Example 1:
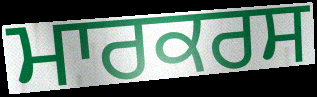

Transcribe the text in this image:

ਮਾਰਕਰਸ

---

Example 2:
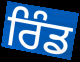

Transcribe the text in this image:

ਰਿੰਡ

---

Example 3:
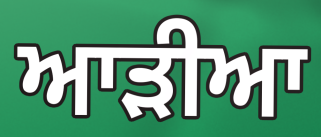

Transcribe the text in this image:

ਆੜੀਆ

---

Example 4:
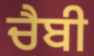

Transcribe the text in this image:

ਚੈਬੀ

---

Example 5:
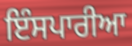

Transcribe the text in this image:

ਇੰਸਪਾਰੀਆ